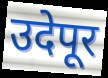
उदेपूर